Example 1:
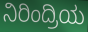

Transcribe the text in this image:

ನಿರಿಂದ್ರಿಯ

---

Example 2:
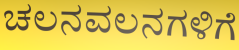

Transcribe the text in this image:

ಚಲನವಲನಗಳಿಗೆ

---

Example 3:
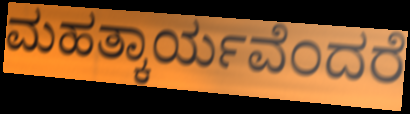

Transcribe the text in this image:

ಮಹತ್ಕಾರ್ಯವೆಂದರೆ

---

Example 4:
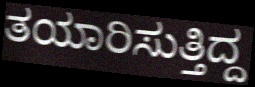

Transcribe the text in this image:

ತಯಾರಿಸುತ್ತಿದ್ದ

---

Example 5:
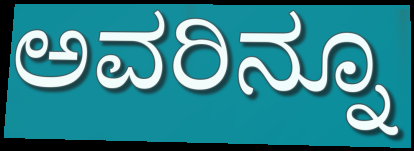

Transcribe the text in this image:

ಅವರಿನ್ನೂ